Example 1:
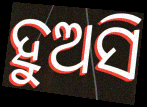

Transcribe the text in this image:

ହୁଅସି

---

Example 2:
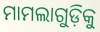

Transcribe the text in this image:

ମାମଲାଗୁଡ଼ିକୁ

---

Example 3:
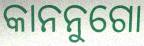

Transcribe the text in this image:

କାନନୁଗୋ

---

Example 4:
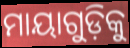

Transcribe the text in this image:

ମାୟାଗୁଡ଼ିକୁ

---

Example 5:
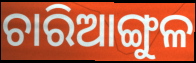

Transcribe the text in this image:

ଚାରିଆଙ୍ଗୁଳ